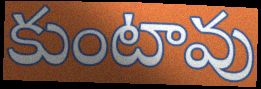
కుంటావు